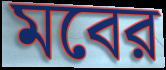
মবের